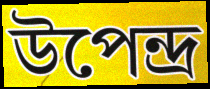
উপেন্দ্র